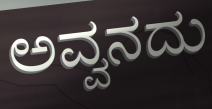
ಅವ್ವನದು